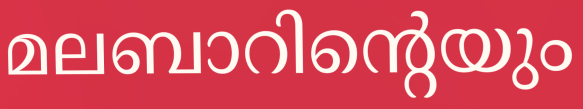
മലബാറിന്റെയും